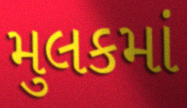
મુલકમાં